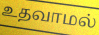
உதவாமல்